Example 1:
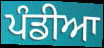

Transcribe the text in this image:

ਪੰਡੀਆ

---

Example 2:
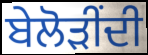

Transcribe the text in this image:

ਬੇਲੋੜੀਂਦੀ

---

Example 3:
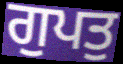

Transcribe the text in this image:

ਗੁਪਤੁ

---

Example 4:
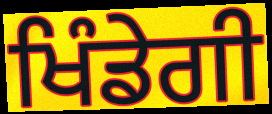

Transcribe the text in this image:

ਖਿੰਡੇਗੀ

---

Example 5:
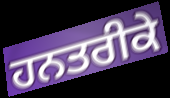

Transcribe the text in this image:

ਹਨਤਰੀਕੇ